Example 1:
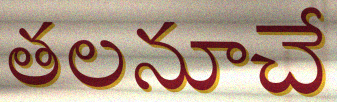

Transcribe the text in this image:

తలనూచే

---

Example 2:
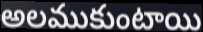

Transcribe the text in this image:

అలముకుంటాయి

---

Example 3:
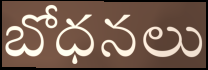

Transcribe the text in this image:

బోధనలు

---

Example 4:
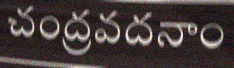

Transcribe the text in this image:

చంద్రవదనాం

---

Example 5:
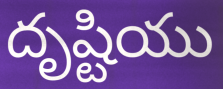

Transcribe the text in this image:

దృష్టియు